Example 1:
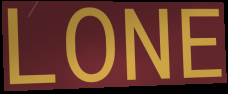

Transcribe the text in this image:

LONE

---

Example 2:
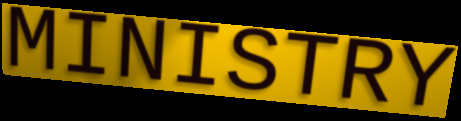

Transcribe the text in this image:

MINISTRY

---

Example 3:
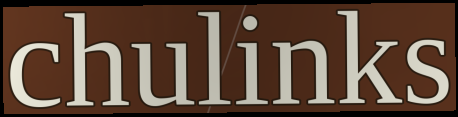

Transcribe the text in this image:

chulinks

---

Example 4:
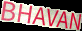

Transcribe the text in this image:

BHAVAN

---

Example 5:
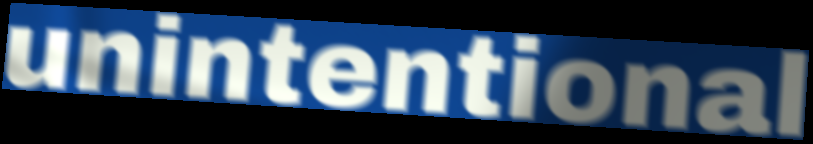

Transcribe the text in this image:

unintentional